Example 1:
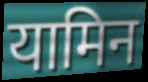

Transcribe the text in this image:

यामिन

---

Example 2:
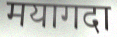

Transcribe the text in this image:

मयागदा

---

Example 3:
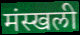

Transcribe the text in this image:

मंस्खली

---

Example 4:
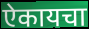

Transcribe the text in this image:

ऐकायचा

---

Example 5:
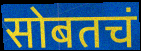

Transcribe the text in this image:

सोबतचं